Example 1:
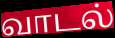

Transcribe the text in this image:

வாடல்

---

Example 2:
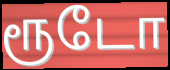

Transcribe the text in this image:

ரூடோ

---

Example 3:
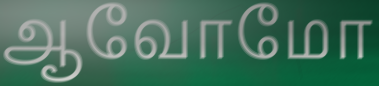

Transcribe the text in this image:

ஆவோமோ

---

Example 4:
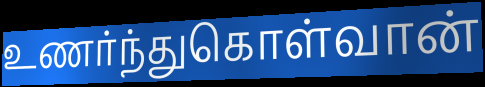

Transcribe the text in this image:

உணர்ந்துகொள்வான்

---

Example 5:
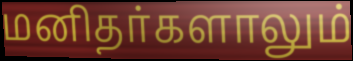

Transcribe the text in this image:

மனிதர்களாலும்